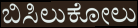
ಬಿಸಿಲುಕೋಲು